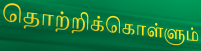
தொற்றிக்கொள்ளும்